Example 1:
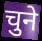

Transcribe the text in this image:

चुने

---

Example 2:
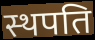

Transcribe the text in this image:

स्थपति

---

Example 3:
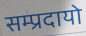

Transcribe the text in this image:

सम्प्रदायो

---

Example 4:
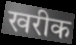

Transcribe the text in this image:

खरीक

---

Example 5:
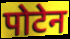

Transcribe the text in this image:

पोटेन